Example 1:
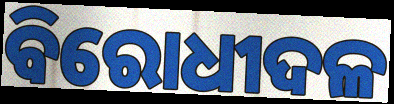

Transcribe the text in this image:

ବିରୋଧୀଦଳ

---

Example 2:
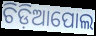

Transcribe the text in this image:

ଚିଡ଼ିଆପୋଲ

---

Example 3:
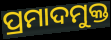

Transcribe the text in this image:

ପ୍ରମାଦମୁକ୍ତ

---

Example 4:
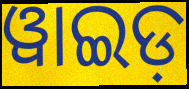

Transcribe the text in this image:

ୱାଇଡ଼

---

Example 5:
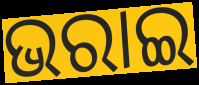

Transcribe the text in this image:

ଭରାଇ